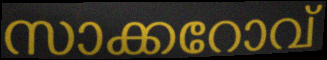
സാക്കറോവ്